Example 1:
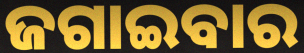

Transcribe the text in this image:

ଜଗାଇବାର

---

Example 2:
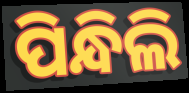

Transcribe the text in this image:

ପିନ୍ଧିଲି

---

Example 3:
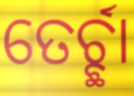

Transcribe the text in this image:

ତେର୍ଚ୍ଛା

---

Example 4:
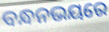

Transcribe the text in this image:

ବନ୍ଧନଭୟରେ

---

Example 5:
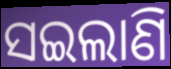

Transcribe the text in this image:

ସଇଲାଣି